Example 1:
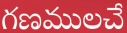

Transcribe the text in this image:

గణములచే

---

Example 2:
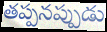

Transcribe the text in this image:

తప్పనప్పుడు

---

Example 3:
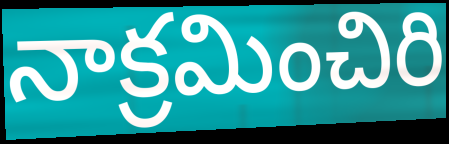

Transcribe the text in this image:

నాక్రమించిరి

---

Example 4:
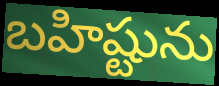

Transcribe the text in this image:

బహిష్టును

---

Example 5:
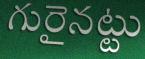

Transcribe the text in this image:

గురైనట్టు